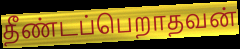
தீண்டப்பெறாதவன்